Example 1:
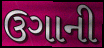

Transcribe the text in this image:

ઉગાની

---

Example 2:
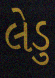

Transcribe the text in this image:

લેડુ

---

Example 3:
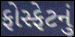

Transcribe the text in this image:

ફોસ્ફેટનું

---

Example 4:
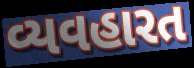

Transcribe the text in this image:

વ્યવહારત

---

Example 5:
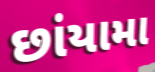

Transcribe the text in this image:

છાંયામા